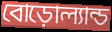
বোড়োল্যান্ড